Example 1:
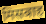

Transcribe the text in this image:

मिसबाह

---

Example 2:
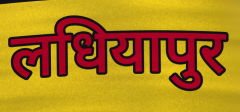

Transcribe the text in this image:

लधियापुर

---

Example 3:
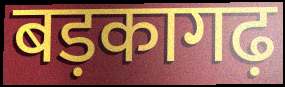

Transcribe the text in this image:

बड़कागढ़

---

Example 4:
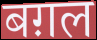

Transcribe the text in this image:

बग़ल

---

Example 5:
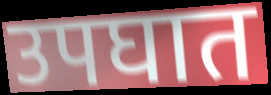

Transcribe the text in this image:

उपघात